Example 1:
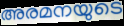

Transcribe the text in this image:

അരമനയുടെ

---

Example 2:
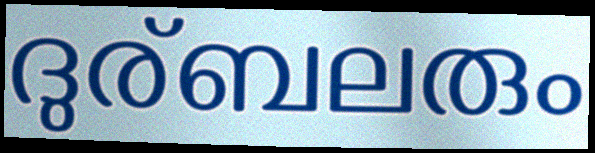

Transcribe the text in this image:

ദുര്ബലരും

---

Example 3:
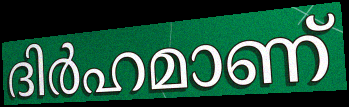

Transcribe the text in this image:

ദിർഹമാണ്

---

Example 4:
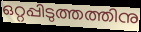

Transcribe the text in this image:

ഒറ്റപ്പിടുത്തത്തിനു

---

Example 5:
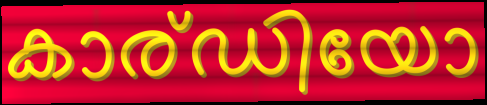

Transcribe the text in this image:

കാര്ഡിയോ